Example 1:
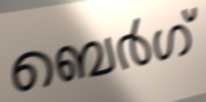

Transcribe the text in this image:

ബെർഗ്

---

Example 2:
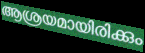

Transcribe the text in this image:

ആശ്രയമായിരിക്കും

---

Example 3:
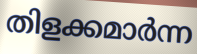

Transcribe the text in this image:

തിളക്കമാർന്ന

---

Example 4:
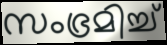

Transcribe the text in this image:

സംഭ്രമിച്ച്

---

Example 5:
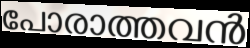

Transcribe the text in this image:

പോരാത്തവൻ